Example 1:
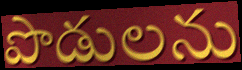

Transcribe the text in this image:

పొడులను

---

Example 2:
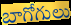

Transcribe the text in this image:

బాగోగులు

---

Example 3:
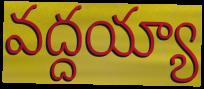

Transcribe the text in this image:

వద్దయ్యా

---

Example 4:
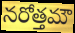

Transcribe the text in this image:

నరోత్తమౌ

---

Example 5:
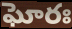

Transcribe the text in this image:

ఘోరః